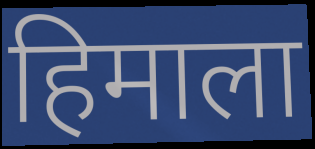
हिमाला